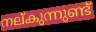
നല്കുന്നുണ്ട്